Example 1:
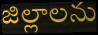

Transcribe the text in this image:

జిల్లాలను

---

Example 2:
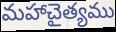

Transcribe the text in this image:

మహాచైత్యము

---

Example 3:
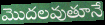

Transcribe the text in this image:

మొదలవుతూనే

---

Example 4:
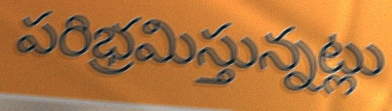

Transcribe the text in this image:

పరిభ్రమిస్తున్నట్లు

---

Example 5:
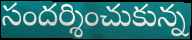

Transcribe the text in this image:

సందర్శించుకున్న